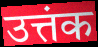
उत्तंक